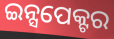
ଇନ୍ସପେକ୍ଟର